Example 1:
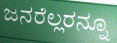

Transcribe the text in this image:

ಜನರೆಲ್ಲರನ್ನೂ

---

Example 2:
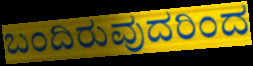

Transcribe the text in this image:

ಬಂದಿರುವುದರಿಂದ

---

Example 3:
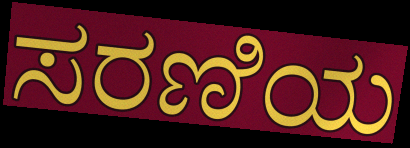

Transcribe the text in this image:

ಸರಣಿಯ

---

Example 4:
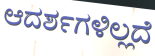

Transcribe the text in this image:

ಆದರ್ಶಗಳಿಲ್ಲದೆ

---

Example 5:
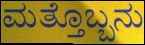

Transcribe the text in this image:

ಮತ್ತೊಬ್ಬನು